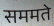
सममते